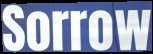
Sorrow